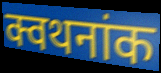
क्वथनांक